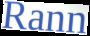
Rann